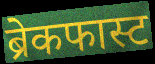
ब्रेकफास्ट